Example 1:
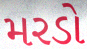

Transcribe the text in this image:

મરડો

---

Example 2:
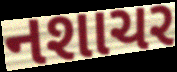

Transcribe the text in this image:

નશાચર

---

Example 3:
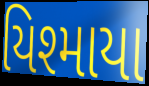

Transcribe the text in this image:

યિશ્માયા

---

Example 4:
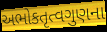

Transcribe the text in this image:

અભોકતૃત્વગુણના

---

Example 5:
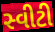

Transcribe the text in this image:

સ્વીટી